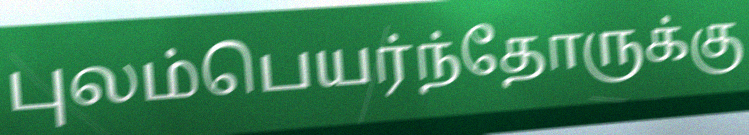
புலம்பெயர்ந்தோருக்கு